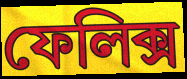
ফেলিক্স